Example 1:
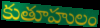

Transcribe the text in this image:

కుతూహులం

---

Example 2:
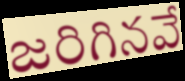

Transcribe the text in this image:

జరిగినవే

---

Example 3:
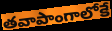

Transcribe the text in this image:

తవాపాంగాలోకే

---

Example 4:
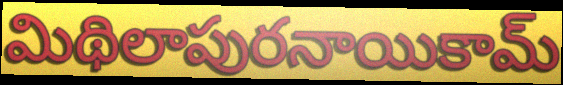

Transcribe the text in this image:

మిథిలాపురనాయికామ్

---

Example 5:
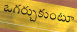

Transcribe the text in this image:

ఒగర్చుకుంటూ